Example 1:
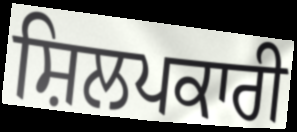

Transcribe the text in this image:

ਸ਼ਿਲਪਕਾਰੀ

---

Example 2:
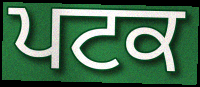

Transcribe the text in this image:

ਪਟਕ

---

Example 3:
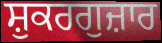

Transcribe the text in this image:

ਸ਼ੁਕਰਗੁਜ਼ਾਰ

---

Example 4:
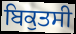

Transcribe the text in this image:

ਬਿਕੁਤਸੀ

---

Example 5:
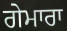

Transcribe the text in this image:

ਗੇਮਾਰਾ